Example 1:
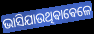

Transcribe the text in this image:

ଭାସିଯାଉଥିଵାଵେଳେ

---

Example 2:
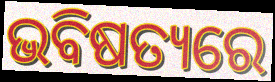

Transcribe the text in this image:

ଭବିଷତ୍ୟରେ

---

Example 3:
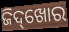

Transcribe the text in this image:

ଜିଦ୍‌ଖୋର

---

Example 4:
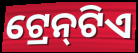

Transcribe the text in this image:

ଟ୍ରେନ୍‌ଟିଏ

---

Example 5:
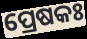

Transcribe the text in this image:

ପ୍ରେଷକଃ